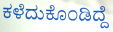
ಕಳೆದುಕೊಂಡಿದ್ದೆ